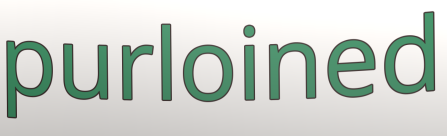
purloined